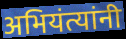
अभियंत्यांनी